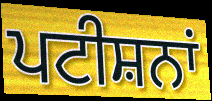
ਪਟੀਸ਼ਨਾਂ